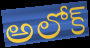
అలోక్